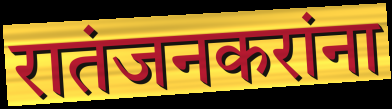
रातंजनकरांना